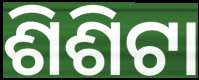
ଶିଶିଟା